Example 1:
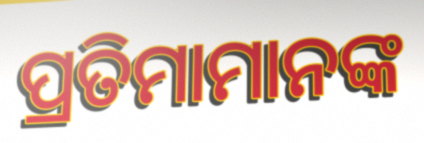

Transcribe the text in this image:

ପ୍ରତିମାମାନଙ୍କ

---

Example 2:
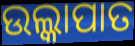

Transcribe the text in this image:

ଉଲ୍କାପାତ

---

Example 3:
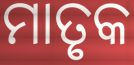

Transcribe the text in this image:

ମାତୃକ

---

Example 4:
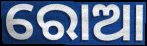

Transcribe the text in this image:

ରୋଆ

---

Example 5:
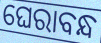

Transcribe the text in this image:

ଘେରାବନ୍ଧ